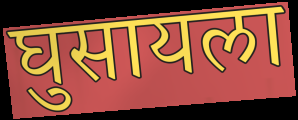
घुसायला